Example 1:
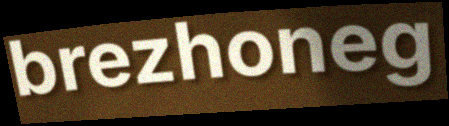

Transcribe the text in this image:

brezhoneg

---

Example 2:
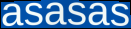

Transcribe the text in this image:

asasas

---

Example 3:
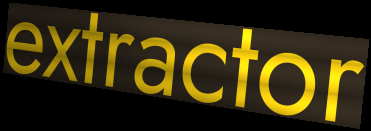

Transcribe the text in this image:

extractor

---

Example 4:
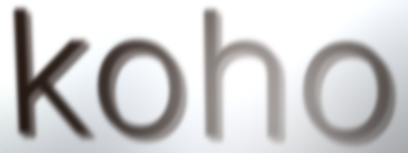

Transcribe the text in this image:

koho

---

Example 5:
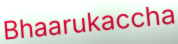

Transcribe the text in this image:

Bhaarukaccha